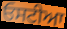
ਓਸਟੀਆ